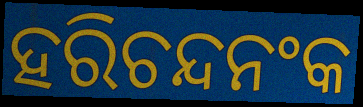
ହରିଚନ୍ଦନଂକ